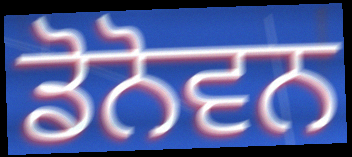
ਡੋਨੋਵਨ